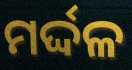
ମର୍ଦ୍ଦଳ